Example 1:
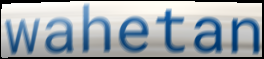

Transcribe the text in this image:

wahetan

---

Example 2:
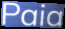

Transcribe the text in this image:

Paia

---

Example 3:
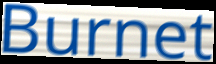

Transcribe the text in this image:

Burnet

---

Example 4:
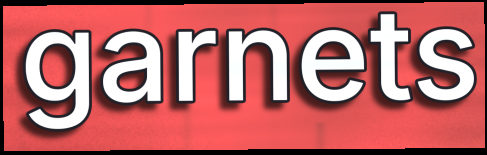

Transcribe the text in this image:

garnets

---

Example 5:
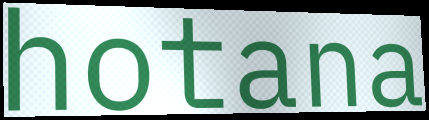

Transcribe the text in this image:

hotana